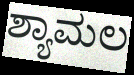
ಶ್ಯಾಮಲ